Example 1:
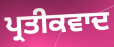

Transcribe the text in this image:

ਪ੍ਰਤੀਕਵਾਦ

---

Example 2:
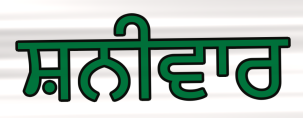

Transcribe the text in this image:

ਸ਼ਨੀਵਾਰ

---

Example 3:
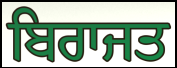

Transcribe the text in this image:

ਬਿਰਾਜਤ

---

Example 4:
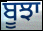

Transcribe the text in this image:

ਬੂਝਾ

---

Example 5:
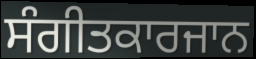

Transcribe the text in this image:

ਸੰਗੀਤਕਾਰਜਾਨ